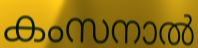
കംസനാൽ